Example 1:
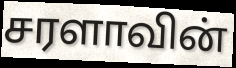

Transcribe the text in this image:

சரளாவின்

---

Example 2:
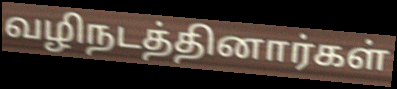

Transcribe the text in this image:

வழிநடத்தினார்கள்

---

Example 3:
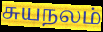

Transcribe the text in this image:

சுயநலம்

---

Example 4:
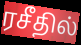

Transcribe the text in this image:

ரசீதில்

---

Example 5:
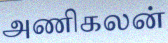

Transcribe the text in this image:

அணிகலன்